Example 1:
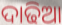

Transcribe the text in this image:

ଦାଢିଆ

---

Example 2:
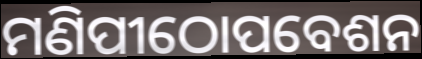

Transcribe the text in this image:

ମଣିପୀଠୋପବେଶନ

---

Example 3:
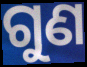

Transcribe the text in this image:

ଗୁଣ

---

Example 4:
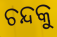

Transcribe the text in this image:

ଚନ୍ଦକୁ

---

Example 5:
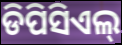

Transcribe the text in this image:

ଡିପିସିଏଲ୍